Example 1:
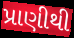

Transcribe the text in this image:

પ્રાણીથી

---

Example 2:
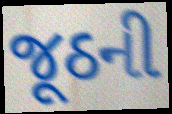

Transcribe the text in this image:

જૂઠની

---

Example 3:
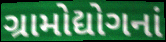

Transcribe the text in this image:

ગ્રામોદ્યોગનાં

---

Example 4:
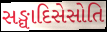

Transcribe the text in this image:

સઙ્ઘાદિસેસોતિ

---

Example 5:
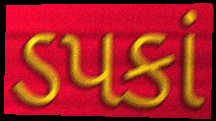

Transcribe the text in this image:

ડપકાં